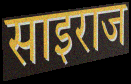
साइराज